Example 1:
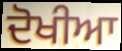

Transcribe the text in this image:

ਦੋਖੀਆ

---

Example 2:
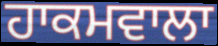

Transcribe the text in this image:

ਹਾਕਮਵਾਲਾ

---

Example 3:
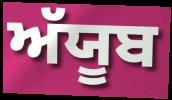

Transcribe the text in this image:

ਅੱਯੂਬ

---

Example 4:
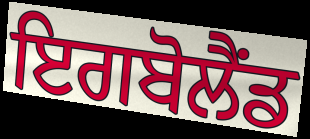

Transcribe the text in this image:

ਇਗਬੋਲੈਂਡ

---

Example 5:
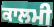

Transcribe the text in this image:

ਕਾਲਮੀ